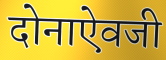
दोनाऐवजी